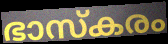
ഭാസ്കരം